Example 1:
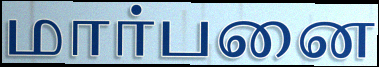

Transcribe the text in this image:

மார்பனை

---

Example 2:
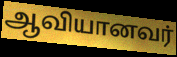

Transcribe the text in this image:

ஆவியானவர்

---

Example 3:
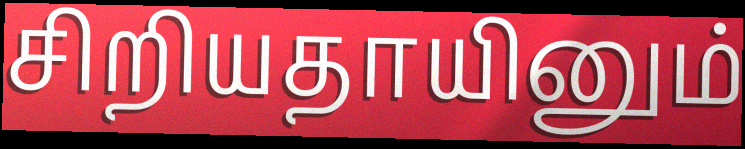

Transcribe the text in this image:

சிறியதாயினும்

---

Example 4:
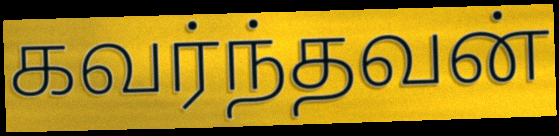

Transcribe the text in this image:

கவர்ந்தவன்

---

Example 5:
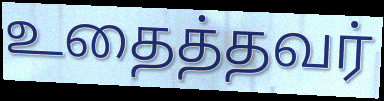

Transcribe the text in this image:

உதைத்தவர்